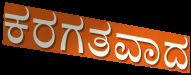
ಕರಗತವಾದ